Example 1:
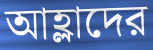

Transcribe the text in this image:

আহ্লাদের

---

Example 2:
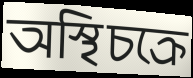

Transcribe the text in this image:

অস্থিচক্রে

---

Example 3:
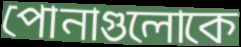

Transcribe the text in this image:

পোনাগুলোকে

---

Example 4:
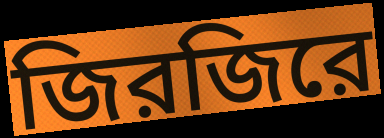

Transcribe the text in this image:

জিরজিরে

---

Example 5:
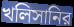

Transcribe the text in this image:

খলিসানির